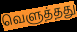
வெளுத்தது